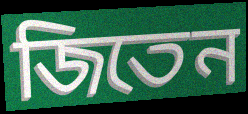
জিতেন